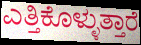
ಎತ್ತಿಕೊಳ್ಳುತ್ತಾರೆ